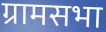
ग्रामसभा